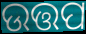
ଉତ୍ତପ